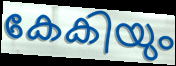
കേകിയും